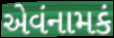
એવંનામકં